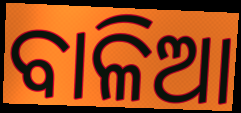
ବାଳିଆ